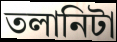
তলানিটা